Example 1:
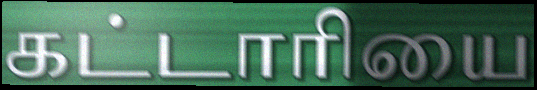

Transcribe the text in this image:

கட்டாரியை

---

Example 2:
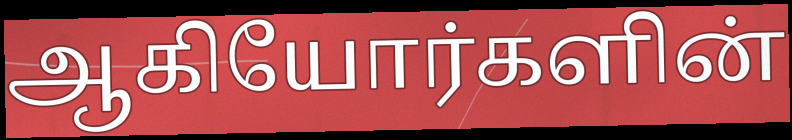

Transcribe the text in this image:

ஆகியோர்களின்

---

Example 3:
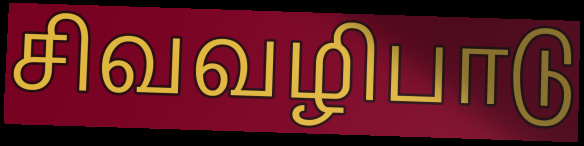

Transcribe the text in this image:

சிவவழிபாடு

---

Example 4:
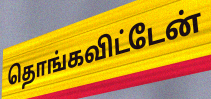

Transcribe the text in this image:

தொங்கவிட்டேன்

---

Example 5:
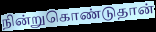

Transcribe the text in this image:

நின்றுகொண்டுதான்